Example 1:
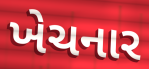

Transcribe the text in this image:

ખેચનાર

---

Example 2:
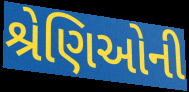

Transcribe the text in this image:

શ્રેણિઓની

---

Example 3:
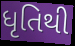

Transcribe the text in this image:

ધૃતિથી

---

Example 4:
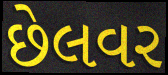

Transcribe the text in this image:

છેલવર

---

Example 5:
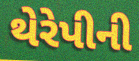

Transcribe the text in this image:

થેરેપીની